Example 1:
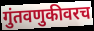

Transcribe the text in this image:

गुंतवणुकीवरच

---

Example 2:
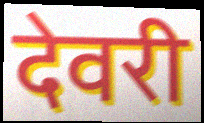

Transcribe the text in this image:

देवरी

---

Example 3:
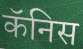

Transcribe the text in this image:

कॅनिस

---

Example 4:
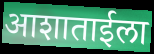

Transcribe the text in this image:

आशाताईला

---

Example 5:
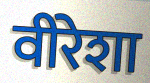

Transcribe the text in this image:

वीरेशा